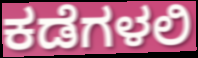
ಕಡೆಗಳಲಿ